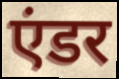
एंडर